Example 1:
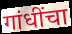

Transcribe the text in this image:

गांधींचा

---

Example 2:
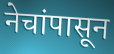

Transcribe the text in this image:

नेचांपासून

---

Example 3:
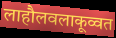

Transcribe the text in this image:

लाहौलवलाकूव्वत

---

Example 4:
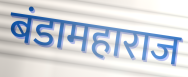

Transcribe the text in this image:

बंडामहाराज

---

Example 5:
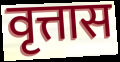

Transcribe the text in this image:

वृत्तास